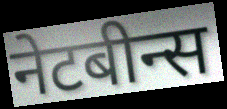
नेटबीन्स